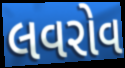
લવરોવ